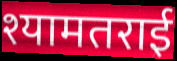
श्यामतराई